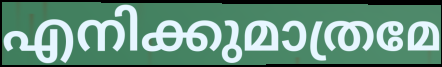
എനിക്കുമാത്രമേ